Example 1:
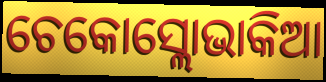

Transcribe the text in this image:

ଚେକୋସ୍ଲୋଭାକିଆ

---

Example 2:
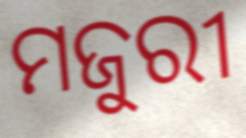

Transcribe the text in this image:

ମଜୁରୀ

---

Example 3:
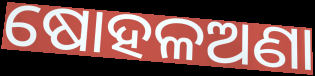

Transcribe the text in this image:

ଷୋହଳଅଣା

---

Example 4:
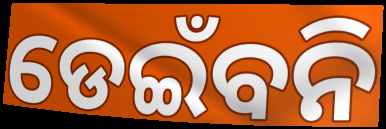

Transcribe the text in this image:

ଡେଇଁବନି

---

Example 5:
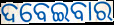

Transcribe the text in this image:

ଦବେଇବାର